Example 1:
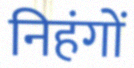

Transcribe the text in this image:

निहंगों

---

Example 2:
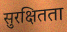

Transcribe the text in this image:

सुरक्षितता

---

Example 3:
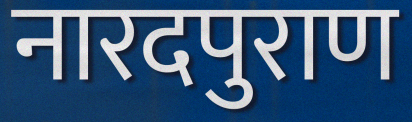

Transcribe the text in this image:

नारदपुराण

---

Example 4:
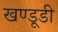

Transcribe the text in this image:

खण्डूडी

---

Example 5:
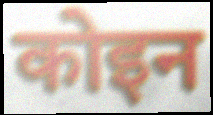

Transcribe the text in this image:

कोइन